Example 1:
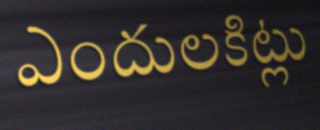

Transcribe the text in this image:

ఎందులకిట్లు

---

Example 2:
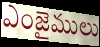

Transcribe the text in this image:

ఎంజైములు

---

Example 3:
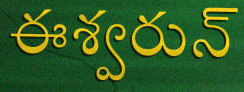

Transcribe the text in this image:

ఈశ్వరున్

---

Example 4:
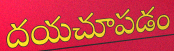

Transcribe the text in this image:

దయచూపడం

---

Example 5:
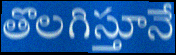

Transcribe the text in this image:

తొలగిస్తూనే